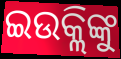
ଇଉକ୍ଲିଙ୍କୁ